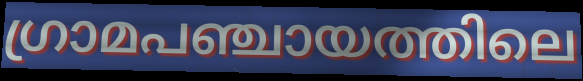
ഗ്രാമപഞ്ചായത്തിലെ